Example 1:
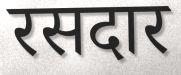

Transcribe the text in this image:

रसदार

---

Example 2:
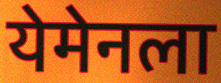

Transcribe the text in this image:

येमेनला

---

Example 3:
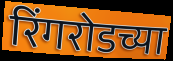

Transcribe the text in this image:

रिंगरोडच्या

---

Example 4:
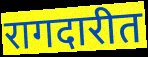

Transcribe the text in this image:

रागदारीत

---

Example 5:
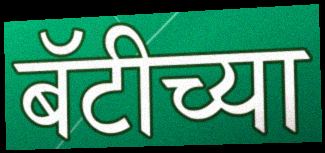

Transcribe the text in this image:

बॅटीच्या